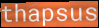
thapsus